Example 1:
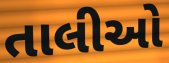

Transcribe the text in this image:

તાલીઓ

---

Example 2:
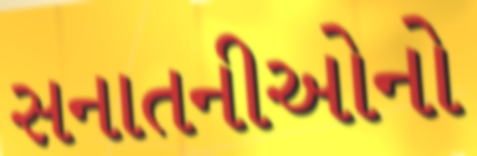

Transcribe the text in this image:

સનાતનીઓનો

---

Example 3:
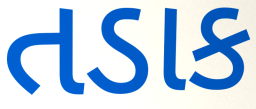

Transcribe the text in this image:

તડાક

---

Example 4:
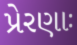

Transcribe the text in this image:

પ્રેરણાઃ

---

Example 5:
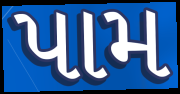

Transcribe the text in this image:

પામ